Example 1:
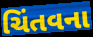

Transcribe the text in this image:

ચિંતવના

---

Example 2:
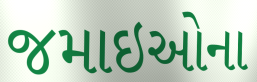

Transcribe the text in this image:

જમાઇઓના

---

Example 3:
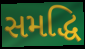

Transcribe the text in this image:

સમદ્ધિ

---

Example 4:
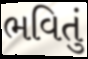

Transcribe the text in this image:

ભવિતું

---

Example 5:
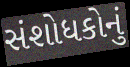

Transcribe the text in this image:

સંશોધકોનું